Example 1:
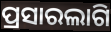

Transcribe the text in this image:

ପ୍ରସାରଲାଗି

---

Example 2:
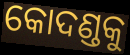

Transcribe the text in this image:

କୋଦଣ୍ଡକୁ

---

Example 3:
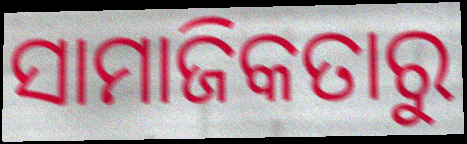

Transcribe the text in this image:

ସାମାଜିକତାରୁ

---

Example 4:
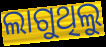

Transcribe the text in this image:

ଲାଗୁଥିଲୁ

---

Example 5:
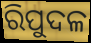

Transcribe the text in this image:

ରିପୁଦଳ